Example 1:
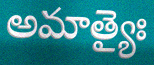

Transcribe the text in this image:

అమాత్యైః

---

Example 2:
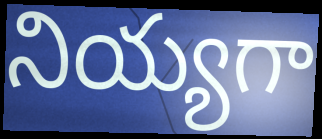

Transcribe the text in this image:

నియ్యగా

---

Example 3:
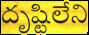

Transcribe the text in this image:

దృష్టిలేని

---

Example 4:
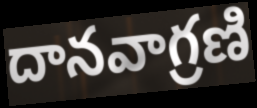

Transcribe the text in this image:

దానవాగ్రణి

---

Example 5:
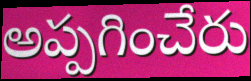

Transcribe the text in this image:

అప్పగించేరు